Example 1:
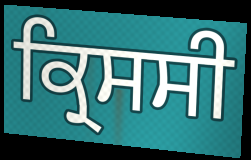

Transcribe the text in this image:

ਕ੍ਰਿਸਸੀ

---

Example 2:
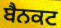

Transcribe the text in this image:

ਬੈਨਕਟ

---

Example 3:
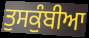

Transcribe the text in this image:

ਤੁਸਕੁੰਬੀਆ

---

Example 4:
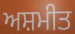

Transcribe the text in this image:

ਅਸ਼ਮੀਤ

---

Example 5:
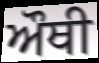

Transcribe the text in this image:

ਔਥੀ